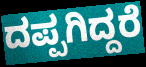
ದಪ್ಪಗಿದ್ದರೆ